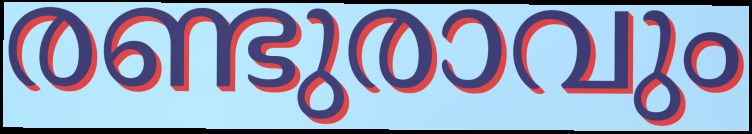
രണ്ടുരാവും